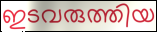
ഇടവരുത്തിയ